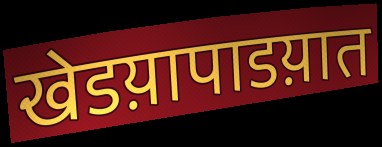
खेडय़ापाडय़ात